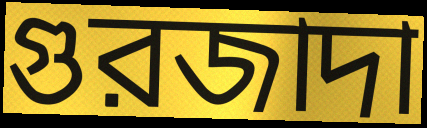
গুরজাদা